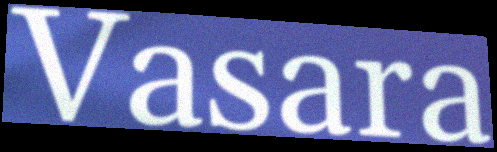
Vasara